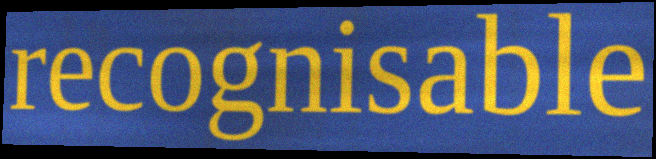
recognisable